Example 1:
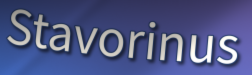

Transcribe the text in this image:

Stavorinus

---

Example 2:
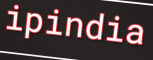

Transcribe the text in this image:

ipindia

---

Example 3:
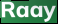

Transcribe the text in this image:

Raay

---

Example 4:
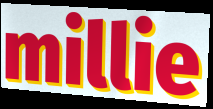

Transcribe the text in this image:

millie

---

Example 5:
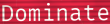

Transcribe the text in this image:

Dominate